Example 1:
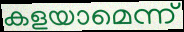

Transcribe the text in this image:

കളയാമെന്ന്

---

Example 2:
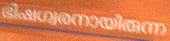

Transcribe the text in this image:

ഭിഷഗ്വരനായിരുന്ന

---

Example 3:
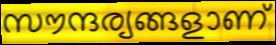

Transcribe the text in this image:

സൗന്ദര്യങ്ങളാണ്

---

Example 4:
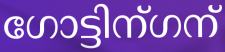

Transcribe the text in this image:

ഗോട്ടിന്ഗന്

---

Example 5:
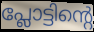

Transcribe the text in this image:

പ്ലോട്ടിന്റെ